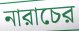
নারাচের